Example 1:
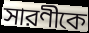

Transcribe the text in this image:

সারণীকে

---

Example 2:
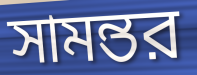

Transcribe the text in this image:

সামন্তর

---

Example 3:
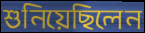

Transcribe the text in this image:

শুনিয়েছিলেন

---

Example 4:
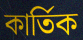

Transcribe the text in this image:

কার্তিক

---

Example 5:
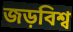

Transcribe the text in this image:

জড়বিশ্ব